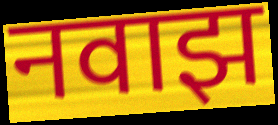
नवाझ